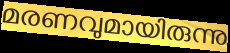
മരണവുമായിരുന്നു